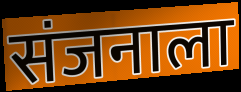
संजनाला